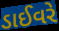
ડાઈવરે